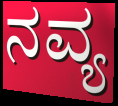
ನವ್ಯ